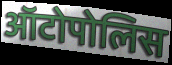
ऑटोपोलिस